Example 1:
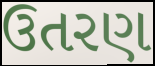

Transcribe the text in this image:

ઉતરણ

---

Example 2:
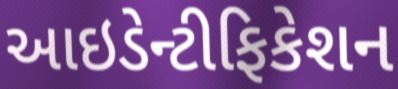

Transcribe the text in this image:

આઇડેન્ટીફિકેશન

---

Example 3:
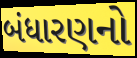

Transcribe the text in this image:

બંધારણનો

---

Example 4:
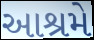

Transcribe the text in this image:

આશ્રમે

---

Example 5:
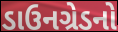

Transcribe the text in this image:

ડાઉનગ્રેડનો